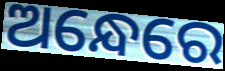
ଅନ୍ଧେରେ